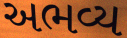
અભવ્ય